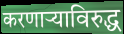
करणाऱ्याविरुद्ध